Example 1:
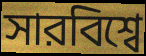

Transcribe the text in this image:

সারবিশ্বে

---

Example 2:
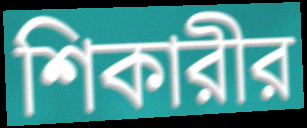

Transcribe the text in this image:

শিকারীর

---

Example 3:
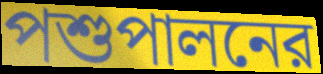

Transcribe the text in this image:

পশুপালনের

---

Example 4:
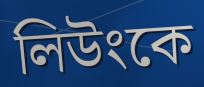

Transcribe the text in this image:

লিউংকে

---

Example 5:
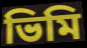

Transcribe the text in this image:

ভিমি